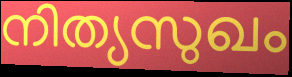
നിത്യസുഖം